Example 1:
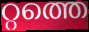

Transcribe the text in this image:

റ്റത്തെ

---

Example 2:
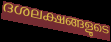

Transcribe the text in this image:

ദശലക്ഷങ്ങളുടെ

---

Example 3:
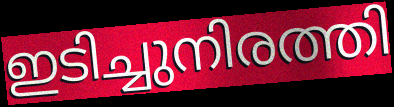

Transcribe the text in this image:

ഇടിച്ചുനിരത്തി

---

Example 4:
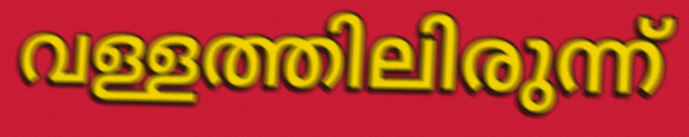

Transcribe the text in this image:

വള്ളത്തിലിരുന്ന്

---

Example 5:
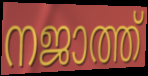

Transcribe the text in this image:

നജാത്ത്